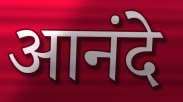
आनंदे